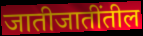
जातीजातींतील